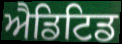
ਐਡਿਟਿਡ